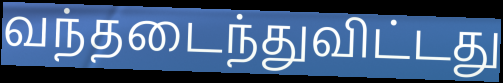
வந்தடைந்துவிட்டது